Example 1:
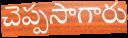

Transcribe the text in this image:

చెప్పసాగారు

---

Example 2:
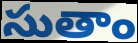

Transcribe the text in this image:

సుతాం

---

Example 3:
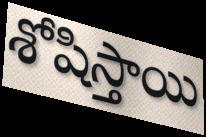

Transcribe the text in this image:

శోషిస్తాయి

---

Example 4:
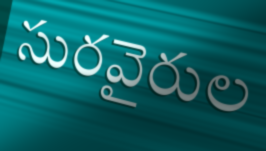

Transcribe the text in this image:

సురవైరుల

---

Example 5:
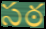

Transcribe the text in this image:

సఠ